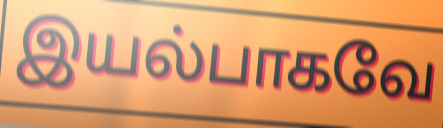
இயல்பாகவே